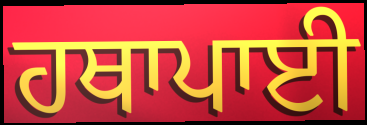
ਹਥਾਪਾਈ